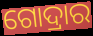
ଗୋଦ୍ରାର